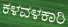
ಕಳವಳಕಾರಿ